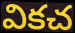
వికచ